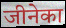
जीनेका